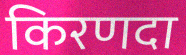
किरणदा